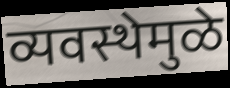
व्यवस्थेमुळे